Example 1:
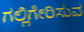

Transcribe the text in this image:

ಗಲ್ಲಿಗೇರಿಸುವ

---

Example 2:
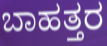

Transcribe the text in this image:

ಬಾಹತ್ತರ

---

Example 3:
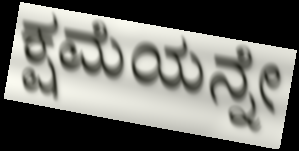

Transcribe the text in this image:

ಕ್ಷಮೆಯನ್ನೇ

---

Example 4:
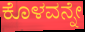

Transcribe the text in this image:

ಕೊಳವನ್ನೇ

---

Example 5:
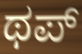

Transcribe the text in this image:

ಥಪ್